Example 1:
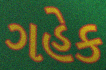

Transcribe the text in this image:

ગહેક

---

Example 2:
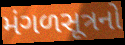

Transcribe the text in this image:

મંગળસૂત્રનો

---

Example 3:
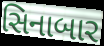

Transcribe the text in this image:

સિનાબાર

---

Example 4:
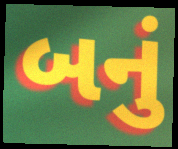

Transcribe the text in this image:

બનું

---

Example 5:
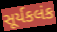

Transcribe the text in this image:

સૂર્યકલંક